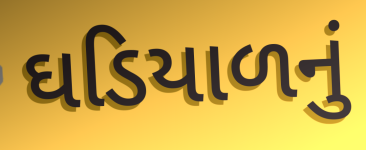
ઘડિયાળનું